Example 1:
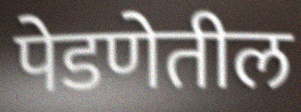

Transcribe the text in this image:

पेडणेतील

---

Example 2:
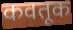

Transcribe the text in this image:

कवतूक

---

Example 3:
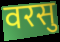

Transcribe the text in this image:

वरसु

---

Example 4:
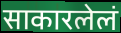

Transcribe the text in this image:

साकारलेलं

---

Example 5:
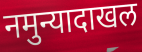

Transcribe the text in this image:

नमुन्यादाखल